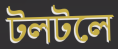
টলটলে